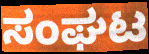
ಸಂಘಟ